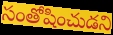
సంతోషించుడని